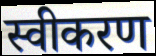
स्वीकरण